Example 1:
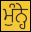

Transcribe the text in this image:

ਮੁੰਨ੍ਹੇ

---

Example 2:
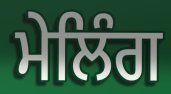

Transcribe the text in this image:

ਮੇਲਿੰਗ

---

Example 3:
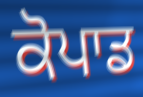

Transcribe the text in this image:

ਕੋਪਾਡ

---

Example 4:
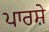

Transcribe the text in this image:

ਪਾਰਸ਼ੇ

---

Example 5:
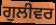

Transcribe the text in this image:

ਗੁਲੀਵਰ